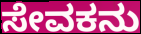
ಸೇವಕನು